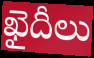
ఖైదీలు